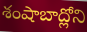
శంషాబాద్లోని